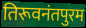
तिरूवनंतपुरम